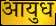
आयुध